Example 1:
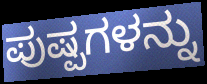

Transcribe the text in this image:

ಪುಷ್ಪಗಳನ್ನು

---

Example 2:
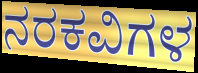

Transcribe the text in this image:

ನರಕವಿಗಳ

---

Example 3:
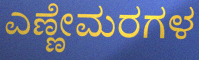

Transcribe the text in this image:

ಎಣ್ಣೇಮರಗಳ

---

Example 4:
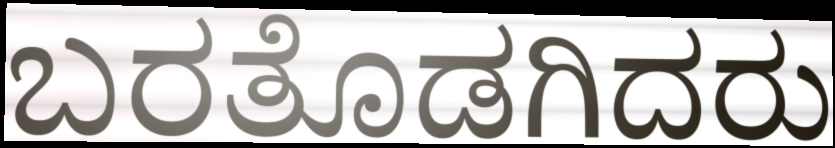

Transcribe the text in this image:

ಬರತೊಡಗಿದರು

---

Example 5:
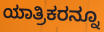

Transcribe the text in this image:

ಯಾತ್ರಿಕರನ್ನೂ